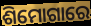
ଶିମୋଗାରେ